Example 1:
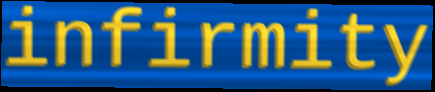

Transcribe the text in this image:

infirmity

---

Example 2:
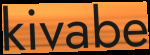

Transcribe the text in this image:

kivabe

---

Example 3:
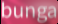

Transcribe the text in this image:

bunga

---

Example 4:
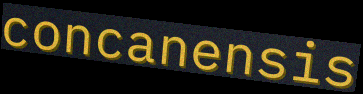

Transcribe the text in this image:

concanensis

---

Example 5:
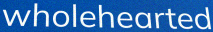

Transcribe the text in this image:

wholehearted